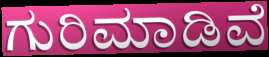
ಗುರಿಮಾಡಿವೆ